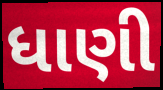
ધાણી